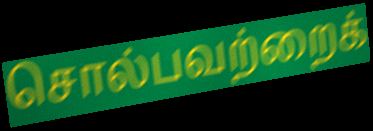
சொல்பவற்றைக்